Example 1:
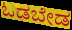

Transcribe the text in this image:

ಓಡಬೇಡ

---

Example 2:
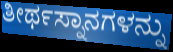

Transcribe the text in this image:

ತೀರ್ಥಸ್ನಾನಗಳನ್ನು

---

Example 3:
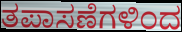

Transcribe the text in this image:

ತಪಾಸಣೆಗಳಿಂದ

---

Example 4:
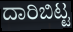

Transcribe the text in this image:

ದಾರಿಬಿಟ್ಟ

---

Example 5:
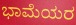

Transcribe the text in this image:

ಭಾಮೆಯರ